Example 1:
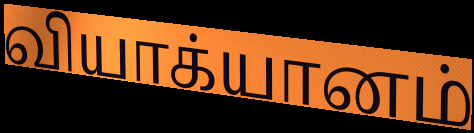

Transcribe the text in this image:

வியாக்யானம்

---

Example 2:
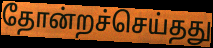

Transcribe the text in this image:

தோன்றச்செய்தது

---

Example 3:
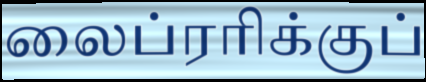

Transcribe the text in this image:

லைப்ரரிக்குப்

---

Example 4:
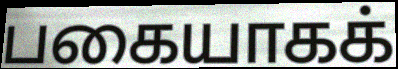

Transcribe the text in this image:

பகையாகக்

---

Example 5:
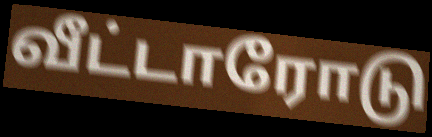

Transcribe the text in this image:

வீட்டாரோடு